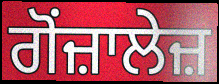
ਗੋਂਜ਼ਾਲੇਜ਼